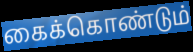
கைக்கொண்டும்